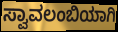
ಸ್ವಾವಲಂಬಿಯಾಗಿ